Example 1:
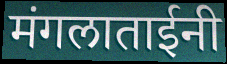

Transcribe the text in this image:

मंगलाताईनी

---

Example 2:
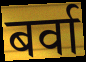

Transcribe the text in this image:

बर्वा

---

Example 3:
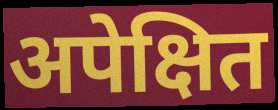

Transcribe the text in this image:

अपेक्षित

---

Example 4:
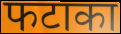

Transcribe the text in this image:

फटाका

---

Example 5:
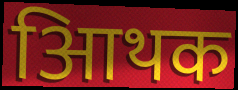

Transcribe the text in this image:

आिथक